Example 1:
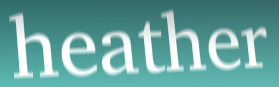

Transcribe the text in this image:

heather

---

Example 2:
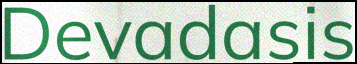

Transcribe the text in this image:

Devadasis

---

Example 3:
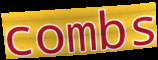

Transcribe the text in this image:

combs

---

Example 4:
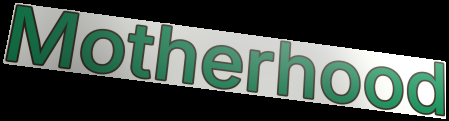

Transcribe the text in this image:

Motherhood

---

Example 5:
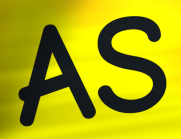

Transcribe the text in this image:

AS